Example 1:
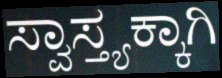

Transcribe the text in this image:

ಸ್ವಾಸ್ತ್ಯಕ್ಕಾಗಿ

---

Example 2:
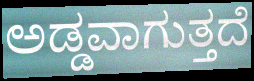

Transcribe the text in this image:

ಅಡ್ಡವಾಗುತ್ತದೆ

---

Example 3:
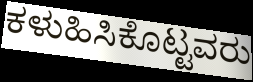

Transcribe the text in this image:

ಕಳುಹಿಸಿಕೊಟ್ಟವರು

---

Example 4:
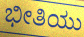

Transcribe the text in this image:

ಭೀತಿಯು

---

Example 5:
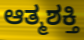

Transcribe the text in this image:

ಆತ್ಮಶಕ್ತಿ